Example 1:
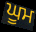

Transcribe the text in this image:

ਘੂਮ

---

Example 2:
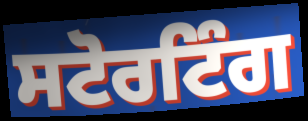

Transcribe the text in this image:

ਸਟੋਰਟਿੰਗ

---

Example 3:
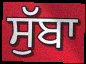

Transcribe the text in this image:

ਸੁੱਬਾ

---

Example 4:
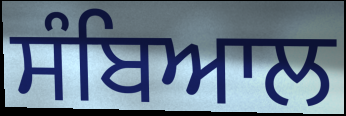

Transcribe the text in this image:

ਸੰਬਿਆਲ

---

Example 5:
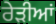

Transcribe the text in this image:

ਰੇੜੀਆਂ